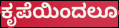
ಕೃಪೆಯಿಂದಲೂ